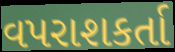
વપરાશકર્તા